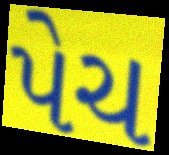
પેચ